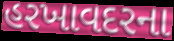
હરખાવદરના